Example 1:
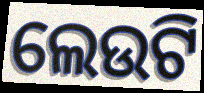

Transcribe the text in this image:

ଲେଉଟି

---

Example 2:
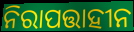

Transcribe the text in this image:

ନିରାପତ୍ତାହୀନ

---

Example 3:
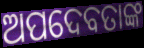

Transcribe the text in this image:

ଅପଦେବତାଙ୍କ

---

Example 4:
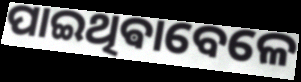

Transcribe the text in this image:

ପାଇଥିଵାବେଳେ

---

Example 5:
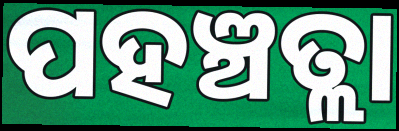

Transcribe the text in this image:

ପହଞ୍ଚତ୍ଲା